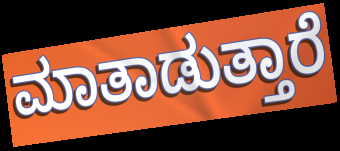
ಮಾತಾಡುತ್ತಾರೆ